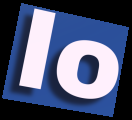
lo